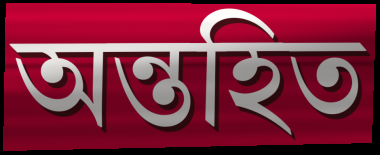
অন্তহিত